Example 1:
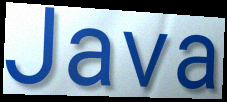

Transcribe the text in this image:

Java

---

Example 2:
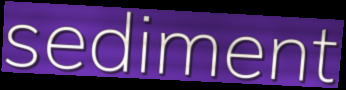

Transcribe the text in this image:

sediment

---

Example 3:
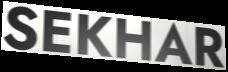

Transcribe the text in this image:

SEKHAR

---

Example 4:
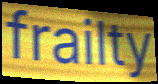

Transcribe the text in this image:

frailty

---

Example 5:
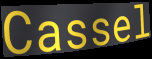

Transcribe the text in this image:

Cassel